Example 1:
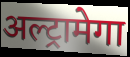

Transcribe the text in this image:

अल्ट्रामेगा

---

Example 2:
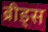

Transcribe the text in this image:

ब्रीड्स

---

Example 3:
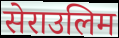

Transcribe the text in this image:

सेराउलिम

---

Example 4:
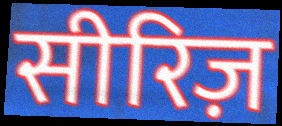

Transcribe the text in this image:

सीरिज़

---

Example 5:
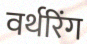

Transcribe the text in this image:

वर्थरिंग